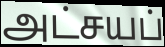
அட்சயப்